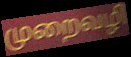
முறைவழி